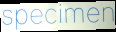
specimen